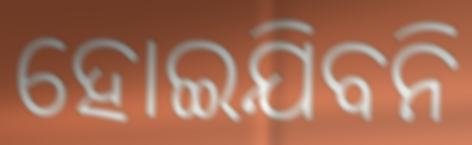
ହୋଇଯିବନି